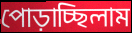
পোড়াচ্ছিলাম